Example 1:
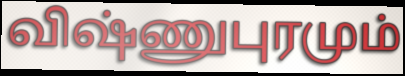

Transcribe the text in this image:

விஷ்ணுபுரமும்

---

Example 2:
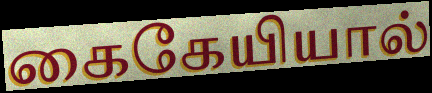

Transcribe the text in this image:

கைகேயியால்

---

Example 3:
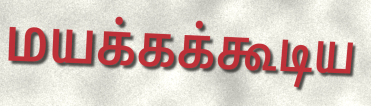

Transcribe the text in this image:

மயக்கக்கூடிய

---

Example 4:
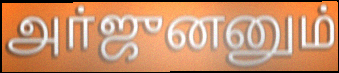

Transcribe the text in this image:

அர்ஜுனனும்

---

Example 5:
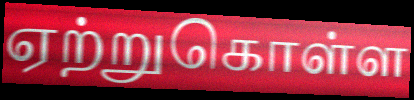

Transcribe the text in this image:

ஏற்றுகொள்ள